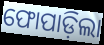
ଫୋପାଡ଼ିଲା